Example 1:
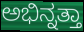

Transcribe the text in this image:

ಅಭಿನ್ನತ್ತಾ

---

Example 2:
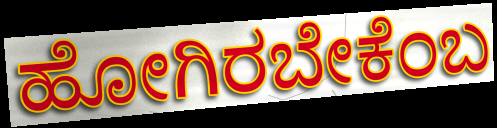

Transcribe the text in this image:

ಹೋಗಿರಬೇಕೆಂಬ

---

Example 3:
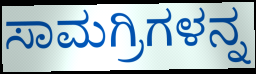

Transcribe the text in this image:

ಸಾಮಗ್ರಿಗಳನ್ನ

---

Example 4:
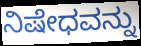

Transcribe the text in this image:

ನಿಷೇಧವನ್ನು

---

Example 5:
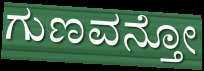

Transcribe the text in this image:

ಗುಣವನ್ತೋ